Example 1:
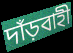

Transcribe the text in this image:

দাঁড়বাহী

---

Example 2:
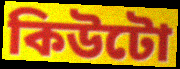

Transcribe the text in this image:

কিউটো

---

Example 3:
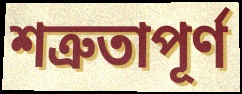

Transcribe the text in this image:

শত্রুতাপূর্ণ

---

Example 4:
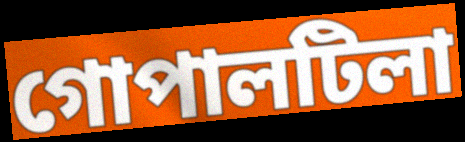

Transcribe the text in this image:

গোপালটিলা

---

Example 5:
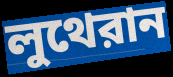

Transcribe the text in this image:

লুথেরান